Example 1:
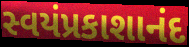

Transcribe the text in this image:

સ્વયંપ્રકાશાનંદ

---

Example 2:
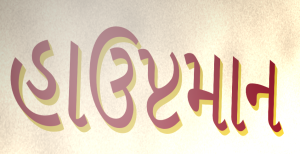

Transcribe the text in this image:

હાઉપ્ટમાન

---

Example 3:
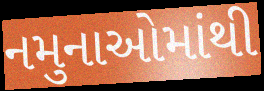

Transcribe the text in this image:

નમુનાઓમાંથી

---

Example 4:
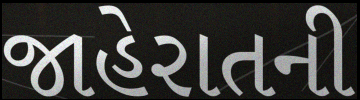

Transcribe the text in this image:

જાહેરાતની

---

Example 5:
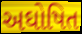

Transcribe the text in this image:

અઘોષિત